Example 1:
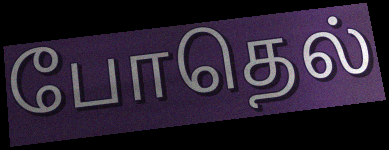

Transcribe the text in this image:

போதெல்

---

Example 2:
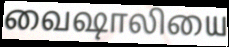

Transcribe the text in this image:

வைஷாலியை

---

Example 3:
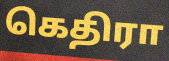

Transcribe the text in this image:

கெதிரா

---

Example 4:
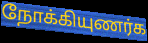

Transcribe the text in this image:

நோக்கியுணர்க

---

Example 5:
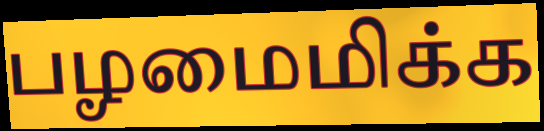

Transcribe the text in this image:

பழமைமிக்க